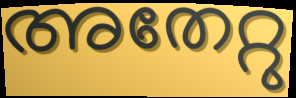
അതേറ്റു